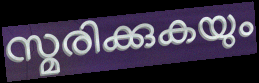
സ്മരിക്കുകയും